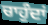
ਚਾਹੁੰਦਾਂ